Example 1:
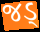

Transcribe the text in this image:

જડ્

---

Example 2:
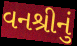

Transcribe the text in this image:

વનશ્રીનું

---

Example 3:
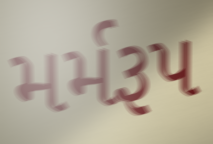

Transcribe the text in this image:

મર્મરૂપ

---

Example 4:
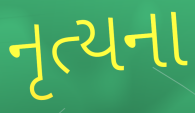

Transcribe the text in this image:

નૃત્યના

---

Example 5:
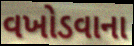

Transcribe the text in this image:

વખોડવાના